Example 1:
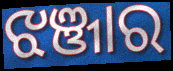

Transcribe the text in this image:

ଝଞ୍ଜାର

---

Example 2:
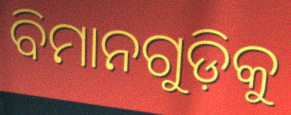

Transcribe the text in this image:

ବିମାନଗୁଡ଼ିକୁ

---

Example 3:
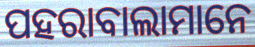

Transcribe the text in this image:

ପହରାବାଲାମାନେ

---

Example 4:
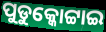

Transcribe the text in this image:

ପୁଡୁକ୍କୋଟ୍ଟାଇ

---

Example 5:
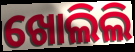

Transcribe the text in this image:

ଖୋଲିଲି